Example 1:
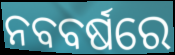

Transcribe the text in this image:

ନବବର୍ଷରେ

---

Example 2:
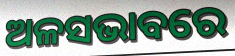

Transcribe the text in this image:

ଅଳସଭାବରେ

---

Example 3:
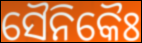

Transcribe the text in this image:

ସୈନିକୈଃ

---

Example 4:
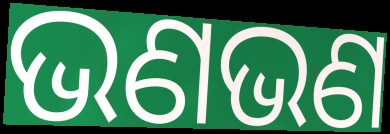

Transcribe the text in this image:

ଭଣଭଣ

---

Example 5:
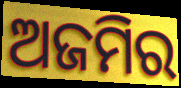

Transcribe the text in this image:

ଅଜମିର